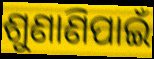
ଶୁଣାଣିପାଇଁ